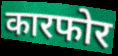
कारफोर